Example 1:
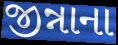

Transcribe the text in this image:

જીન્નાના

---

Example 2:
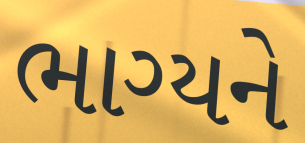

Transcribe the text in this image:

ભાગ્યને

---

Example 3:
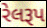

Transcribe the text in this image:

રેલરૂપ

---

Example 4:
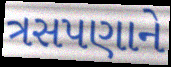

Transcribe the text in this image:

ત્રસપણાને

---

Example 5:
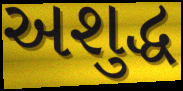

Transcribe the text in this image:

અશુદ્ધ